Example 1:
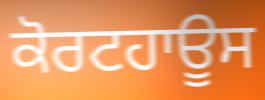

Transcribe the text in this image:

ਕੋਰਟਹਾਊਸ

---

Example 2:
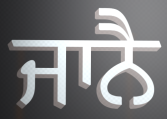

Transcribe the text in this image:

ਜਾਨੈ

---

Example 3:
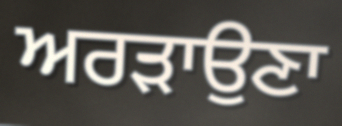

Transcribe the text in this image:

ਅਰੜਾਉਣਾ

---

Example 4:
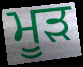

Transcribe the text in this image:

ਮੂੜ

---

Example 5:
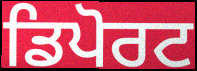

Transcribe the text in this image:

ਡਿਪੋਰਟ